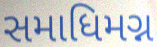
સમાધિમગ્ન